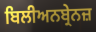
ਬਿਲੀਅਨਬ੍ਰੇਨਜ਼